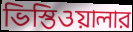
ভিস্তিওয়ালার